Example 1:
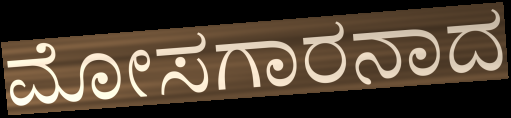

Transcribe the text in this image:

ಮೋಸಗಾರನಾದ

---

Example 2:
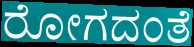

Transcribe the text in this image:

ರೋಗದಂತೆ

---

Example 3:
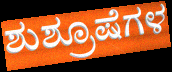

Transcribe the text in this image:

ಶುಶ್ರೂಷೆಗಳ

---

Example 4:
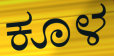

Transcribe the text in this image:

ಕೂಳ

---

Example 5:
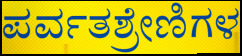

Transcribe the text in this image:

ಪರ್ವತಶ್ರೇಣಿಗಳ